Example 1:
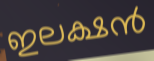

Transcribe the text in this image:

ഇലക്ഷൻ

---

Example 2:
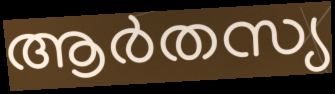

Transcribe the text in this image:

ആർതസ്യ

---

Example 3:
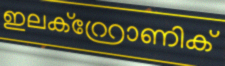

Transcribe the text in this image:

ഇലക്റ്റ്രോണിക്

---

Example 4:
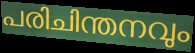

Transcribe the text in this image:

പരിചിന്തനവും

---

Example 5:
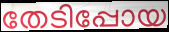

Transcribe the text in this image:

തേടിപ്പോയ